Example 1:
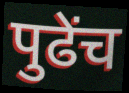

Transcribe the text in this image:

पुढेंच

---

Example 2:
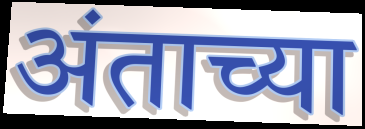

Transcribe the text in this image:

अंताच्या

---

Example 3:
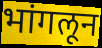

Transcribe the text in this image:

भांगलून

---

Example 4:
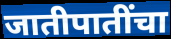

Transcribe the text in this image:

जातीपातींचा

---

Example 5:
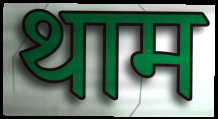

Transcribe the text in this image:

थाम